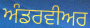
ਅੰਡਰਵੀਅਰ